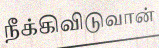
நீக்கிவிடுவான்